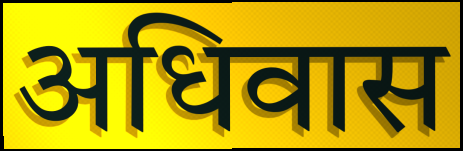
अधिवास